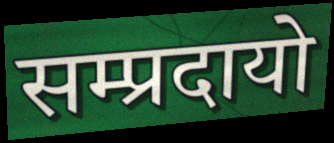
सम्प्रदायो